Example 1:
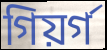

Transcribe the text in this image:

গিয়ৰ্গ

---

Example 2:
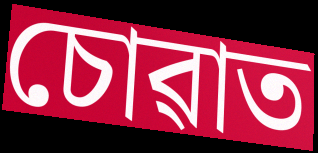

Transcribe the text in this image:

চোৱাত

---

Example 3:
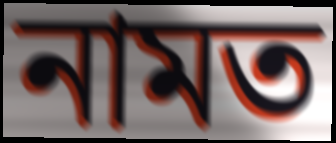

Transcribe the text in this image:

নামত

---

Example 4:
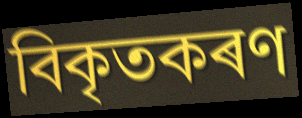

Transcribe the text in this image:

বিকৃতকৰণ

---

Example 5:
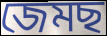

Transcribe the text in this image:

জেমছ